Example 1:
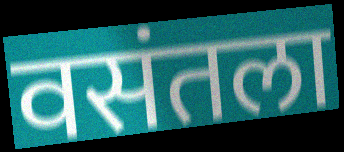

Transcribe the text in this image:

वसंतला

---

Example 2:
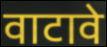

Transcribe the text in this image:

वाटावे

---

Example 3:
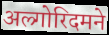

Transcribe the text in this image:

अल्गोरिदमने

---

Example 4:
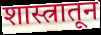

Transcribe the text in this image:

शास्त्रातून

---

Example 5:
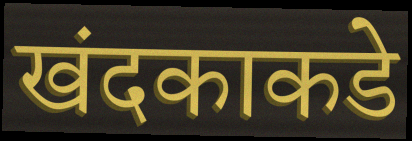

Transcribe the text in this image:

खंदकाकडे